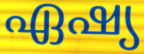
ഏഷ്യ